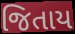
જિતાય